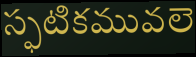
స్ఫటికమువలె